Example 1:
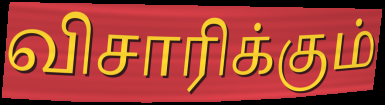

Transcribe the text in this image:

விசாரிக்கும்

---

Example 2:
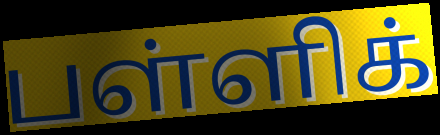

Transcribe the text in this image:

பள்ளிக்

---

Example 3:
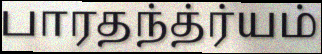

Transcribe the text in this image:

பாரதந்த்ர்யம்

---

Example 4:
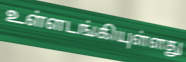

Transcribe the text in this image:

உள்ளடங்கியுள்ளது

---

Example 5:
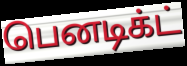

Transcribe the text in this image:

பெனடிக்ட்